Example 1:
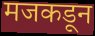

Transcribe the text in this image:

मजकडून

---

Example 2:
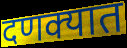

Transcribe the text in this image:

दणक्यात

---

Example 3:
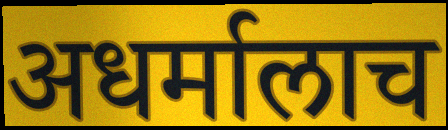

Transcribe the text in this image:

अधर्मालाच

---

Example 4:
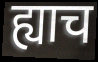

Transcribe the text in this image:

ह्याच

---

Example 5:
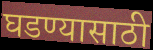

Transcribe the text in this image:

घडण्यासाठी